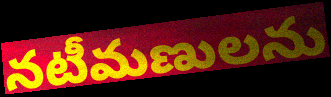
నటీమణులను